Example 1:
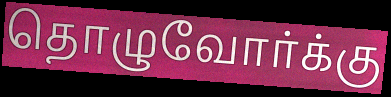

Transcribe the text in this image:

தொழுவோர்க்கு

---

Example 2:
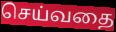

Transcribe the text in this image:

செய்வதை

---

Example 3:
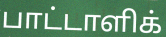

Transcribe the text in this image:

பாட்டாளிக்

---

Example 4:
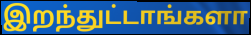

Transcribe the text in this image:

இறந்துட்டாங்களா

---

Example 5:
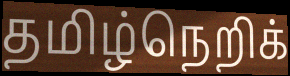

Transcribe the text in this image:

தமிழ்நெறிக்